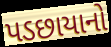
પડછાયાનો